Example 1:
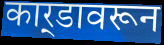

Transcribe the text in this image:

कार्डावरून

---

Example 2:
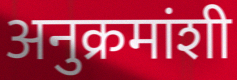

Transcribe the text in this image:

अनुक्रमांशी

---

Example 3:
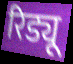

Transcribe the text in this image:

रिड्यू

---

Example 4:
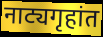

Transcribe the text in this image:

नाट्यगृहांत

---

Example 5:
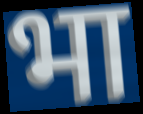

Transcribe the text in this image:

भा